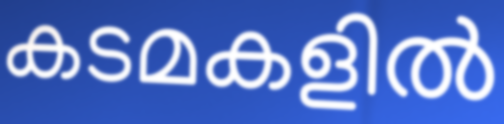
കടമകളിൽ